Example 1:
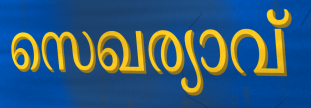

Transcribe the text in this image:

സെഖര്യാവ്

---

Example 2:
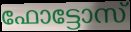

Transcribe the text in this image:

ഫോട്ടോസ്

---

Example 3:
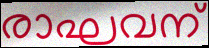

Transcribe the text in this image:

രാഘവന്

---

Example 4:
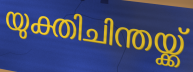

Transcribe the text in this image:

യുക്തിചിന്തയ്ക്ക്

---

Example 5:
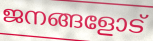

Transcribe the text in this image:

ജനങ്ങളോട്